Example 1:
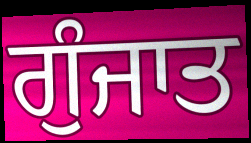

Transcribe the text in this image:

ਗੁੰਜਾਤ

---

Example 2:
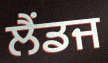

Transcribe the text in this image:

ਲੈਂਡਜ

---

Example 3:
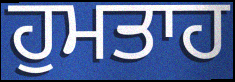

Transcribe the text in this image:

ਹੁਮਤਾਹ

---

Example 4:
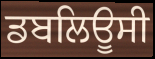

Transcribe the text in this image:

ਡਬਲਿਊਸੀ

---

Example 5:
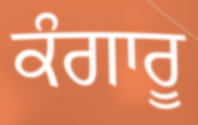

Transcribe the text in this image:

ਕੰਗਾਰੂ